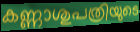
കണ്ണാശുപത്രിയുടെ